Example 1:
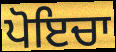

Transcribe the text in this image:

ਪੋਇਚਾ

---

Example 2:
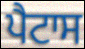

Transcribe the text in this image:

ਪੈਟਾਸ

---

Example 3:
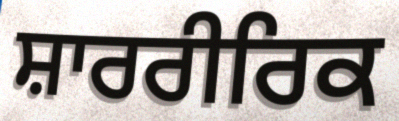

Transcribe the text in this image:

ਸ਼ਾਰਰੀਰਿਕ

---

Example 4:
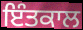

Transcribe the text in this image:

ਇੰਤਕਾਲ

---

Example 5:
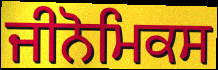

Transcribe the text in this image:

ਜੀਨੋਮਿਕਸ